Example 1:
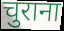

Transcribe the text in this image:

चुराना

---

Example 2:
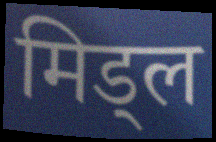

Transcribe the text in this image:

मिड्ल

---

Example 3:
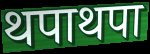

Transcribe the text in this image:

थपाथपा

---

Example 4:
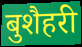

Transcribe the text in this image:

बुशैहरी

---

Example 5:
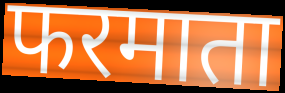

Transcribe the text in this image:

फरमाता